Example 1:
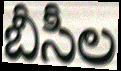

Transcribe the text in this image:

బీసీల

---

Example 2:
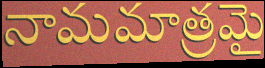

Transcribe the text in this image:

నామమాత్రమై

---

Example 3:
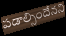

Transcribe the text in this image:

పడాల్సిందేనని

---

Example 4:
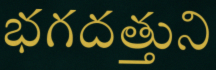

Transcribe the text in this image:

భగదత్తుని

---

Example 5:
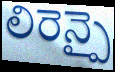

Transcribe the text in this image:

లిరెన్పై